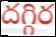
దగ్గిర